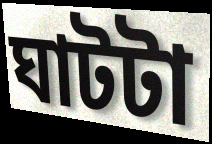
ঘাটটা